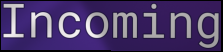
Incoming